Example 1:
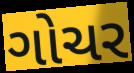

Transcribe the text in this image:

ગોચર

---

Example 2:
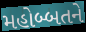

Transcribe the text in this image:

મહોબ્બતને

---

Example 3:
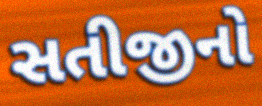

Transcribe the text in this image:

સતીજીનો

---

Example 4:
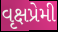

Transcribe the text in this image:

વૃક્ષપ્રેમી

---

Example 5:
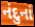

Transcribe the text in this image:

નંદુનાં